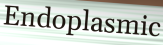
Endoplasmic